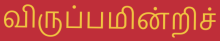
விருப்பமின்றிச்